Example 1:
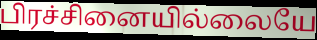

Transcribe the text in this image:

பிரச்சினையில்லையே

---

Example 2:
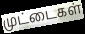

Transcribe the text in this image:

முட்டைகள்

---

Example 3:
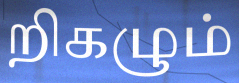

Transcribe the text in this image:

றிகழும்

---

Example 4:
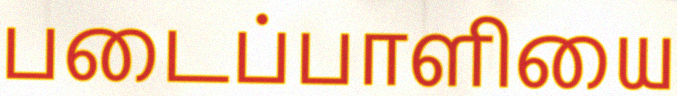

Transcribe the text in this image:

படைப்பாளியை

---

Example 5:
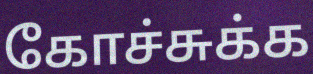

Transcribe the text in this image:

கோச்சுக்க